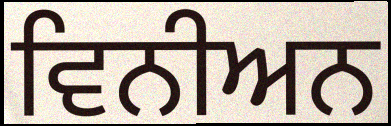
ਵਿਨੀਅਨ